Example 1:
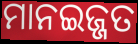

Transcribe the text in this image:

ମାନଇଜ୍ଜତ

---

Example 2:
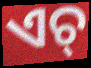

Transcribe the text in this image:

ଏଚ୍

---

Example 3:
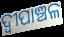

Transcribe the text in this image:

ଦ୍ୱୀପାଞ୍ଚଳ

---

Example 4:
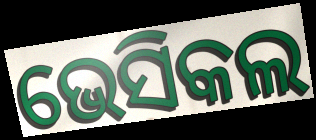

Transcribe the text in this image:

ଭେସିକଲ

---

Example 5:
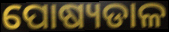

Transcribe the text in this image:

ପୋଷ୍ୟଡାଳ